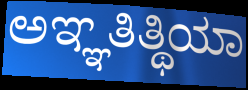
ಅಞ್ಞತಿತ್ಥಿಯಾ